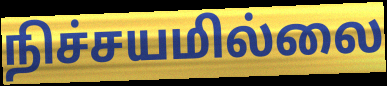
நிச்சயமில்லை